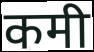
कमी